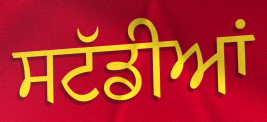
ਸਟੱਡੀਆਂ